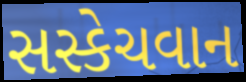
સસ્કેચવાન